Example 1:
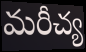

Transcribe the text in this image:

మరీచ్య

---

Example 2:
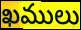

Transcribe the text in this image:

ఖములు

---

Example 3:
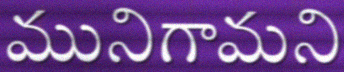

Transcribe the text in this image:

మునిగామని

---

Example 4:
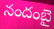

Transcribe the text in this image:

నందంబై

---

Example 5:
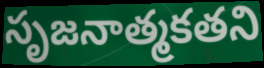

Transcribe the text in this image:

సృజనాత్మకతని